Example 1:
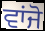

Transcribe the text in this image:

ਵਾਂਜੋ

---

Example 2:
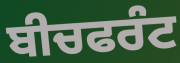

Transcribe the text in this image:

ਬੀਚਫਰੰਟ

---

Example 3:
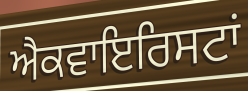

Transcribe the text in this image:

ਐਕਵਾਇਰਿਸਟਾਂ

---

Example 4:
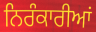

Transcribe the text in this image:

ਨਿਰੰਕਾਰੀਆਂ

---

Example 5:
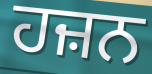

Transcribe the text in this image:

ਹਜ਼ਨ